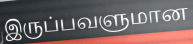
இருப்பவளுமான